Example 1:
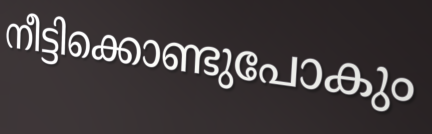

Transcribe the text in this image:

നീട്ടിക്കൊണ്ടുപോകും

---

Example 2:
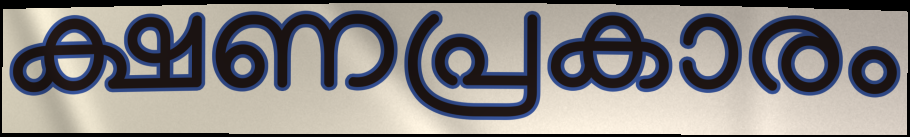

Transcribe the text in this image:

ക്ഷണപ്രകാരം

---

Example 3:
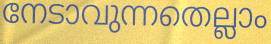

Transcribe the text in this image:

നേടാവുന്നതെല്ലാം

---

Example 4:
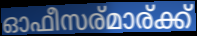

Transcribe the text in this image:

ഓഫീസര്മാര്ക്ക്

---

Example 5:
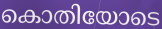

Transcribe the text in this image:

കൊതിയോടെ